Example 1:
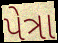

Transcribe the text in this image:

પેત્રા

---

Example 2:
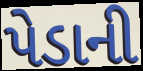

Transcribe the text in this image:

પેડાની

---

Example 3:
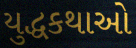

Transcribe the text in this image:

યુદ્ધકથાઓ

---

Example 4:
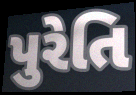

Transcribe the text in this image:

પુરેતિ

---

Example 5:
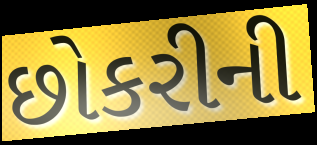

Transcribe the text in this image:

છોકરીની